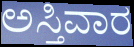
ಅಸ್ತಿವಾರ